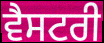
ਵੈਸਟਰੀ